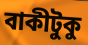
বাকীটুকু